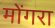
मोंगरा